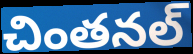
చింతనల్